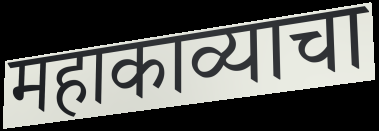
महाकाव्याचा